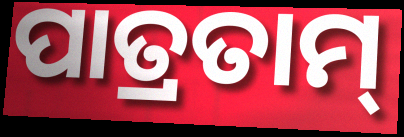
ପାତ୍ରତାମ୍